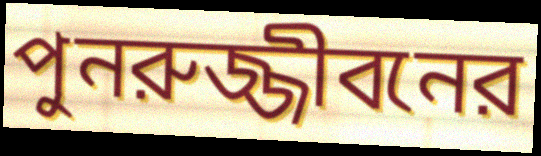
পুনরুজ্জীবনের